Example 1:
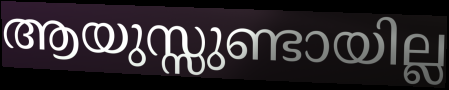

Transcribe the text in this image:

ആയുസ്സുണ്ടായില്ല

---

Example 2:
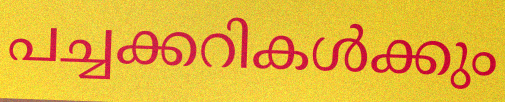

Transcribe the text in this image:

പച്ചക്കറികൾക്കും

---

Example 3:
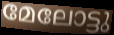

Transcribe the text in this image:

മേലോട്ടു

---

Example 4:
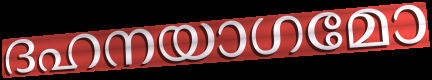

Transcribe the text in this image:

ദഹനയാഗമോ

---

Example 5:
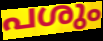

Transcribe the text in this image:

പശും